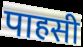
पाहसी